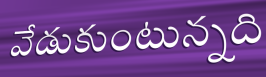
వేడుకుంటున్నది